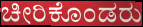
ಚೀರಿಕೊಂಡರು